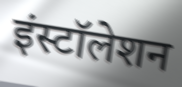
इंस्टॉलेशन